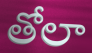
తోలా